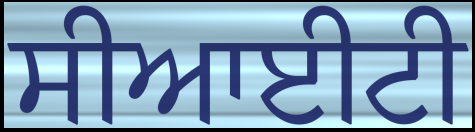
ਸੀਆਈਟੀ